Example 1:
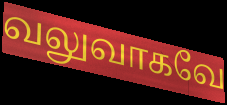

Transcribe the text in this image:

வலுவாகவே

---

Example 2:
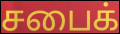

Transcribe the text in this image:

சபைக்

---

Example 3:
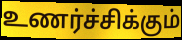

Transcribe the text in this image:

உணர்ச்சிக்கும்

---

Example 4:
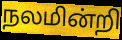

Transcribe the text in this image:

நலமின்றி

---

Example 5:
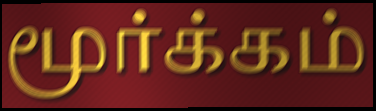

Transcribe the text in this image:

மூர்க்கம்